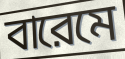
বারেমে